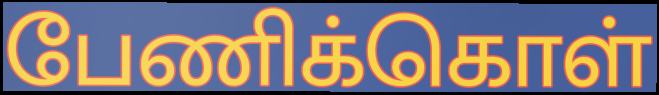
பேணிக்கொள்